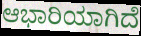
ಆಭಾರಿಯಾಗಿದೆ